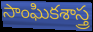
సాంఘికశాస్త్ర